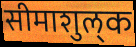
सीमाशुल्क